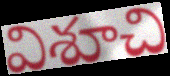
విశూచి